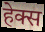
हेक्स